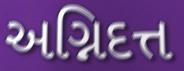
અગ્નિદત્ત